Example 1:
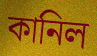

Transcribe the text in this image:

কানিল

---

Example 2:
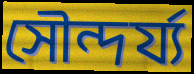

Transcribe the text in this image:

সৌন্দৰ্য্য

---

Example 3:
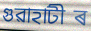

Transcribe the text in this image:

গুৱাহাটীৰ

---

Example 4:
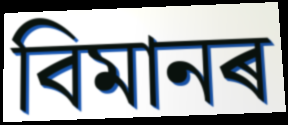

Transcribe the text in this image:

বিমানৰ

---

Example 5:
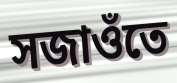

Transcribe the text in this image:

সজাওঁতে